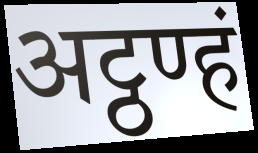
अट्ठण्हं